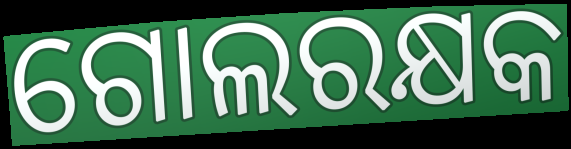
ଗୋଲରକ୍ଷକ